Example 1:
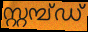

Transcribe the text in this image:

സ്റ്റമ്പ്ഡ്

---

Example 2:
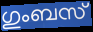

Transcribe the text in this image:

ഗുംബസ്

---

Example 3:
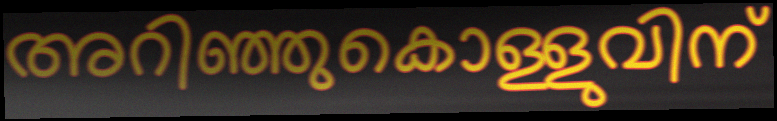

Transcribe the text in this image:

അറിഞ്ഞുകൊള്ളുവിന്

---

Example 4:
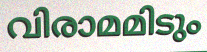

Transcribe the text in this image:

വിരാമമിടും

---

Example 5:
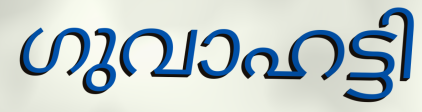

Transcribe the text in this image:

ഗുവാഹട്ടി